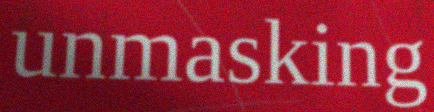
unmasking